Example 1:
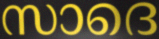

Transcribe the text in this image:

സാദെ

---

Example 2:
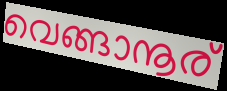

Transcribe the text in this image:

വെങ്ങാനൂര്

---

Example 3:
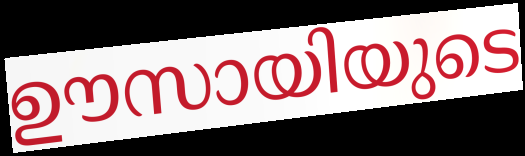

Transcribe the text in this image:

ഊസായിയുടെ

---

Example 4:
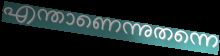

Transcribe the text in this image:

എന്താണെന്നുതന്നെ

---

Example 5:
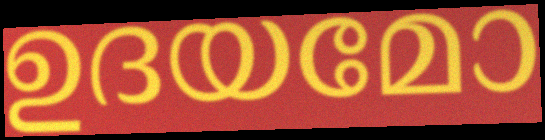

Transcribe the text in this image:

ഉദയമോ